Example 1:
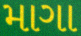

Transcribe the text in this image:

માગા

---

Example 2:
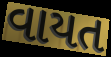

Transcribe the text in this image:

વાયત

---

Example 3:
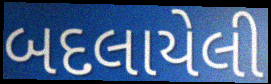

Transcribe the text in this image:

બદલાયેલી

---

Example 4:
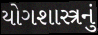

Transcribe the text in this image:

યોગશાસ્ત્રનું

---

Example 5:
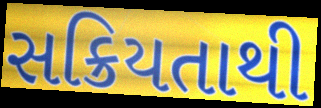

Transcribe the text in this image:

સક્રિયતાથી